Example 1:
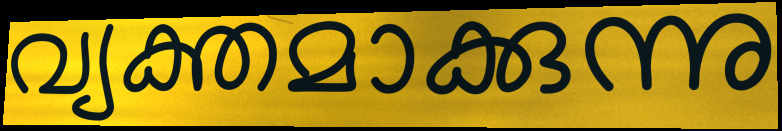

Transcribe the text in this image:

വ്യക്തമാക്കുന്നു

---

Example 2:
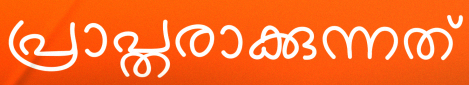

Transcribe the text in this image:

പ്രാപ്തരാക്കുന്നത്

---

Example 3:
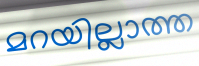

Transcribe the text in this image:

മറയില്ലാത്ത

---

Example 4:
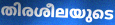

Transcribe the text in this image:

തിരശീലയുടെ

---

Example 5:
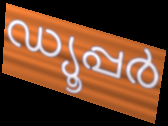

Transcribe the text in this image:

ഡ്യൂപ്പർ